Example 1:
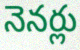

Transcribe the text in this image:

నెనర్లు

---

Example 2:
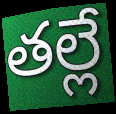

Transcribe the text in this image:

తల్లే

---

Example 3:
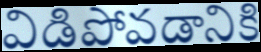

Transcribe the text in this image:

విడిపోవడానికి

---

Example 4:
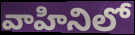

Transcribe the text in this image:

వాహినిలో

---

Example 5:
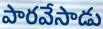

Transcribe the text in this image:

పారవేసాడు